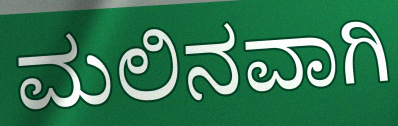
ಮಲಿನವಾಗಿ